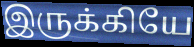
இருக்கியே